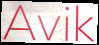
Avik